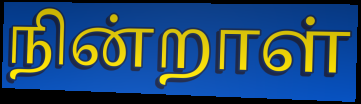
நின்றாள்